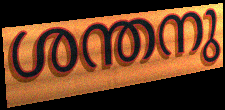
ശന്തനു